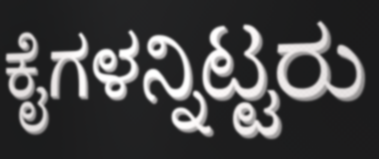
ಕೈಗಳನ್ನಿಟ್ಟರು